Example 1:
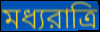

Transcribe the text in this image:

মধ্যরাত্রি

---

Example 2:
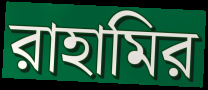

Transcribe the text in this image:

রাহামির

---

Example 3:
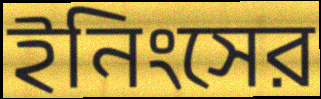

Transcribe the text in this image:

ইনিংসের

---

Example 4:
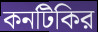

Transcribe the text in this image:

কনটিকির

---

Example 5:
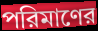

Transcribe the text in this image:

পরিমাণের